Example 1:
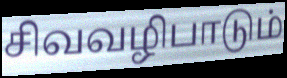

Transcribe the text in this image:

சிவவழிபாடும்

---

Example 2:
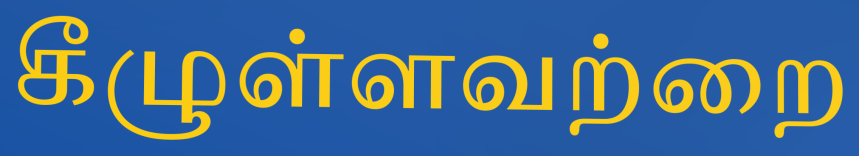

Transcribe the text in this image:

கீழுள்ளவற்றை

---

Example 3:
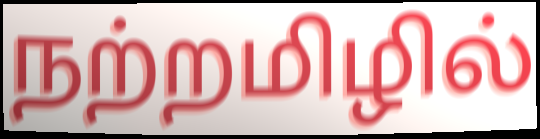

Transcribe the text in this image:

நற்றமிழில்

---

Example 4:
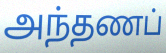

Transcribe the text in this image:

அந்தணப்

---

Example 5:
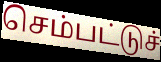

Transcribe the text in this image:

செம்பட்டுச்